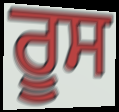
ਰੂਸ